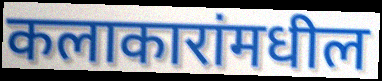
कलाकारांमधील